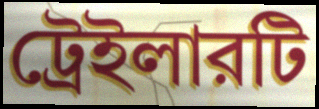
ট্রেইলারটি